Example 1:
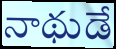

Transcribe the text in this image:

నాథుడే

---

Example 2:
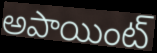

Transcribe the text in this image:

అపాయింట్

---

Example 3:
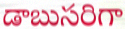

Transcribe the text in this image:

డాబుసరిగా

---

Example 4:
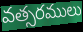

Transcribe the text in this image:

వత్సరములు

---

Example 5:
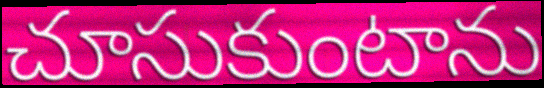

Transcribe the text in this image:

చూసుకుంటాను